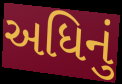
અધિનું